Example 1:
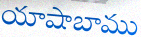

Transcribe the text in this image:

యాషాబాము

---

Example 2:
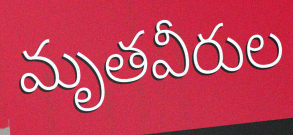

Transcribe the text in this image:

మృతవీరుల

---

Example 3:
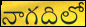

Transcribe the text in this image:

నాగదిలో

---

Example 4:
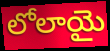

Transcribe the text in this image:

లోలాయై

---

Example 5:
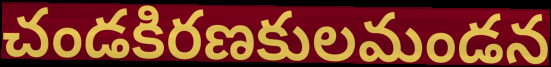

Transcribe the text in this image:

చండకిరణకులమండన